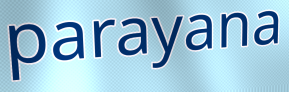
parayana